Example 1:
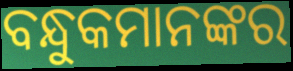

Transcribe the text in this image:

ବନ୍ଧୁକମାନଙ୍କର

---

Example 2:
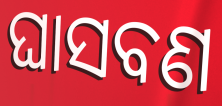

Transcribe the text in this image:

ଘାସବଣ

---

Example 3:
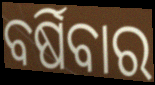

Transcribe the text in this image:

ବର୍ଷିବାର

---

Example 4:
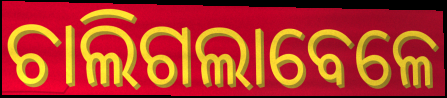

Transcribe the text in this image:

ଚାଲିଗଲାବେଳେ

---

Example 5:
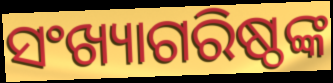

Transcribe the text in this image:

ସଂଖ୍ୟାଗରିଷ୍ଠଙ୍କ